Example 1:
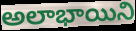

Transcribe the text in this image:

అలాభాయిని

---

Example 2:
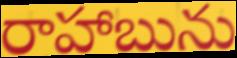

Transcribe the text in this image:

రాహాబును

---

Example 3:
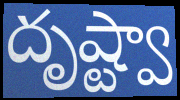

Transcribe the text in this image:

దృష్ట్వా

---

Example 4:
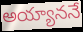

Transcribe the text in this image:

అయ్యాననే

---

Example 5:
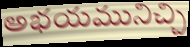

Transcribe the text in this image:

అభయమునిచ్చి